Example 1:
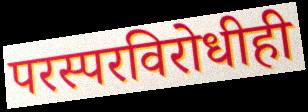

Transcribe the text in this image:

परस्परविरोधीही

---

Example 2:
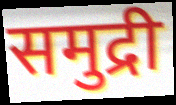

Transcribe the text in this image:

समुद्री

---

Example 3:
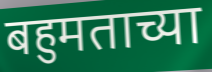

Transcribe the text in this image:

बहुमताच्या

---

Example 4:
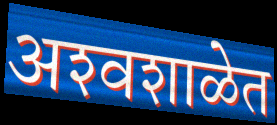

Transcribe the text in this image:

अश्वशाळेत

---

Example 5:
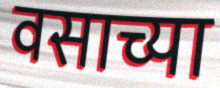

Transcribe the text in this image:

वसाच्या